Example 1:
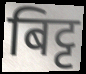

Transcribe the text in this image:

बिट्ट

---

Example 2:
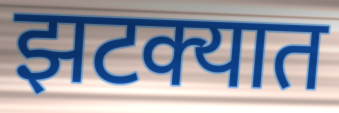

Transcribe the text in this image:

झटक्‍यात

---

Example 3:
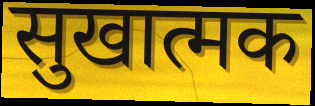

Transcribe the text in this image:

सुखात्मक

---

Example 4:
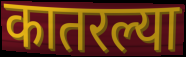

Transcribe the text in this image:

कातरल्या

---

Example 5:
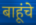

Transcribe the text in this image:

बाहूंचे